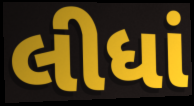
લીધાં